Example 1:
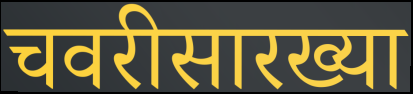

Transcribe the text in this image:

चवरीसारख्या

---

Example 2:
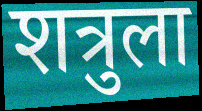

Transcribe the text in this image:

शत्रुला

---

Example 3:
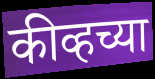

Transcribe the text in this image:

कीव्हच्या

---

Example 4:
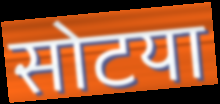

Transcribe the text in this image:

सोटया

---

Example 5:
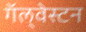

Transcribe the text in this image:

गॅल्वेस्टन